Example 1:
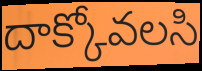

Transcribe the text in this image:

దాక్కోవలసి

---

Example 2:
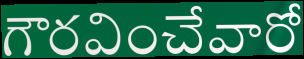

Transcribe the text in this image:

గౌరవించేవారో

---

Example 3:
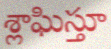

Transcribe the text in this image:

శ్లాఘిస్తూ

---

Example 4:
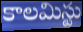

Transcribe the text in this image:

కాలమిస్టు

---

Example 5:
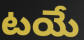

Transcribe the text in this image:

టయే